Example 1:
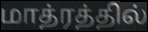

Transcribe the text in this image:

மாத்ரத்தில்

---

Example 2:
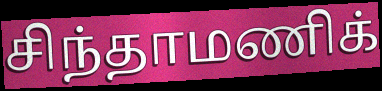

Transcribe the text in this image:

சிந்தாமணிக்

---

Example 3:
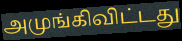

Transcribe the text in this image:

அமுங்கிவிட்டது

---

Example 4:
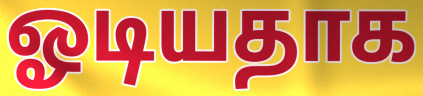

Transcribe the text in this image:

ஓடியதாக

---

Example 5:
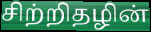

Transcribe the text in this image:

சிற்றிதழின்